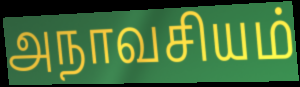
அநாவசியம்